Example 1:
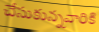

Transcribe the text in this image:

చేసుకున్నవారికి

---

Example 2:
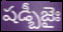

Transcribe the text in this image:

షడ్బీజైః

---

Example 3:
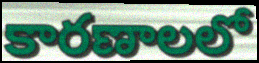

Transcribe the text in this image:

కారణాలలో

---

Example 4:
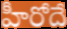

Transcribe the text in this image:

హీరోదే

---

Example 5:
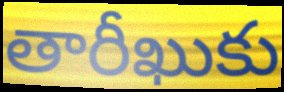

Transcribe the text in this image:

తారీఖుకు